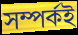
সম্পর্কই